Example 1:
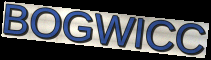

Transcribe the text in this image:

BOGWICC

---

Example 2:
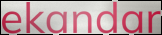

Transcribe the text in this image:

ekandar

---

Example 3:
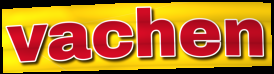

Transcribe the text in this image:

vachen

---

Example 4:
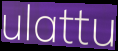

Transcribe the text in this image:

ulattu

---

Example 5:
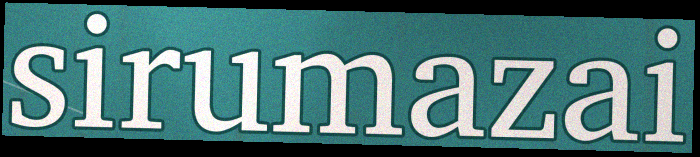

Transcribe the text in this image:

sirumazai